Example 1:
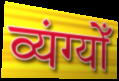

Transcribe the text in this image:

व्यंग्योँ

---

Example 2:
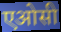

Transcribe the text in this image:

एओसी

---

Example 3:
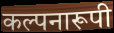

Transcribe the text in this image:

कल्पनारूपी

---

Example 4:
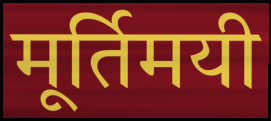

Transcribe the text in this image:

मूर्तिमयी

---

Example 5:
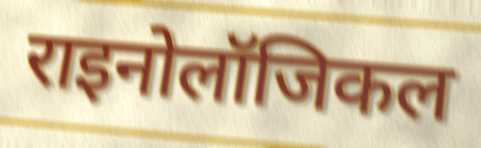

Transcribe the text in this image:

राइनोलॉजिकल